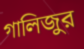
গালিজুর